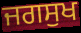
ਜਗਸੁਖ